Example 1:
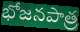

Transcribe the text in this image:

భోజనపాత్ర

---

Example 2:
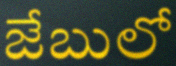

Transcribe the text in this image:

జేబులో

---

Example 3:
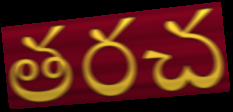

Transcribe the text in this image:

తరచ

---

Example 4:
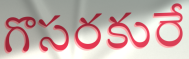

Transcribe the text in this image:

గొసరకురే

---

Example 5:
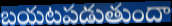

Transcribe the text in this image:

బయటపడుతుందా